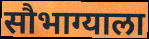
सौभाग्याला